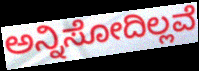
ಅನ್ನಿಸೋದಿಲ್ಲವೆ